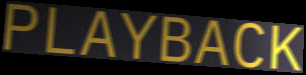
PLAYBACK